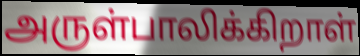
அருள்பாலிக்கிறாள்